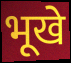
भूखे